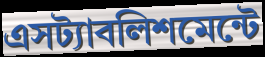
এসট্যাবলিশমেন্টে